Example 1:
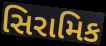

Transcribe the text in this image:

સિરામિક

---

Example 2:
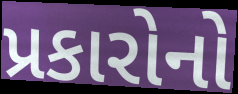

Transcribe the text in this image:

પ્રકારોનો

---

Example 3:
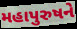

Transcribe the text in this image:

મહાપુરુષને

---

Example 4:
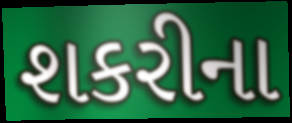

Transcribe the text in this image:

શકરીના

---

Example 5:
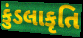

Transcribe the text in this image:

કુંડલાકૃતિ